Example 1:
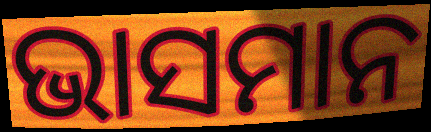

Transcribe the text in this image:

ଭାସମାନ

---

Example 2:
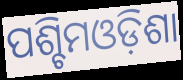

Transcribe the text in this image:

ପଶ୍ଚିମଓଡ଼ିଶା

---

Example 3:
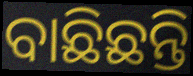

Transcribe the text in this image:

ବାଛିଛନ୍ତି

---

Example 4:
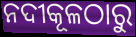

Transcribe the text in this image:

ନଦୀକୂଳଠାରୁ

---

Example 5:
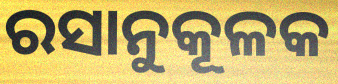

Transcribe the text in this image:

ରସାନୁକୂଳକ